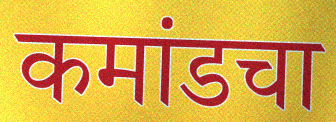
कमांडचा